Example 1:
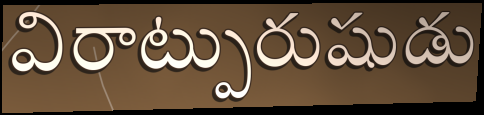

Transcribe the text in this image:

విరాట్పురుషుడు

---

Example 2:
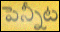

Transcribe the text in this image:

పెన్నీట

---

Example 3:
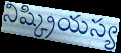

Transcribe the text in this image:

నిష్క్రియస్య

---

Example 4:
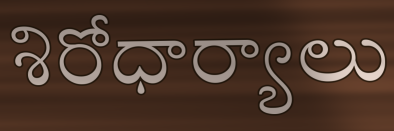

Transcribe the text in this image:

శిరోధార్యాలు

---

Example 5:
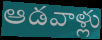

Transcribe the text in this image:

ఆడవాళ్లు